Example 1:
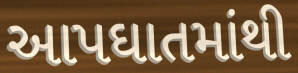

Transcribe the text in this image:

આપઘાતમાંથી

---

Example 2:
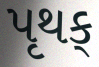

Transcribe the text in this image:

પૃથક્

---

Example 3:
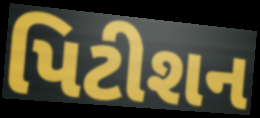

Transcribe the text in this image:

પિટીશન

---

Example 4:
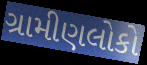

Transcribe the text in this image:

ગ્રામીણલોકો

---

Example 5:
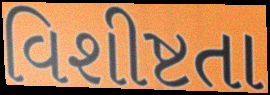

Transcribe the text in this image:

વિશીષ્ટતા